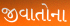
જીવાતોના